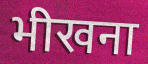
भीखना